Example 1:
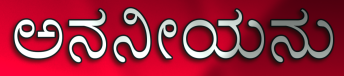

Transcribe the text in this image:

ಅನನೀಯನು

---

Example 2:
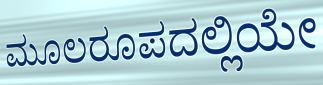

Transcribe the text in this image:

ಮೂಲರೂಪದಲ್ಲಿಯೇ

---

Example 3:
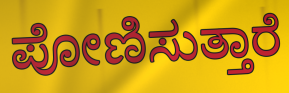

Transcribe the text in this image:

ಪೋಣಿಸುತ್ತಾರೆ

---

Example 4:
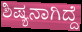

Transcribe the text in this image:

ಶಿಷ್ಯನಾಗಿದ್ದೆ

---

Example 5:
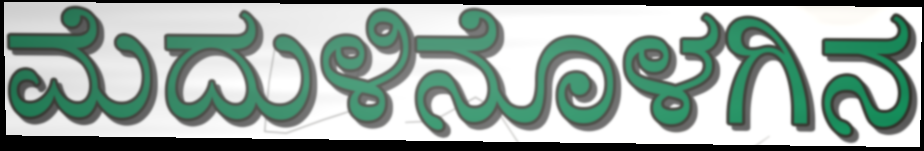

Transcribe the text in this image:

ಮೆದುಳಿನೊಳಗಿನ